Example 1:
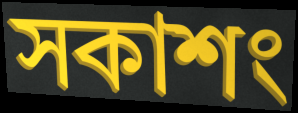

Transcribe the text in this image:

সকাশং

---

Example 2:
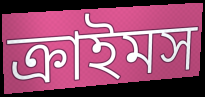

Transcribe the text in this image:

ক্রাইমস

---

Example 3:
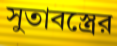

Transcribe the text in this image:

সুতাবস্ত্রের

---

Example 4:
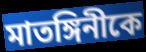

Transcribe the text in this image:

মাতঙ্গিনীকে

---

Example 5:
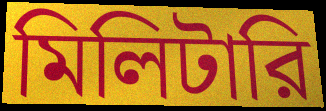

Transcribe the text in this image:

মিলিটারি